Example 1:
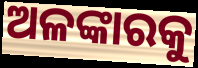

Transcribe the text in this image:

ଅଳଙ୍କାରକୁ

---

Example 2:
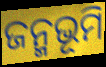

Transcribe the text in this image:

ଜନ୍ମଭୂମି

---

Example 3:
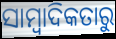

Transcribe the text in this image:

ସାମ୍ବାଦିକତାରୁ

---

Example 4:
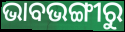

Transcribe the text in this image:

ଭାବଭଙ୍ଗୀରୁ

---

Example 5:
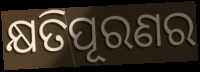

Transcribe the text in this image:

କ୍ଷତିପୂରଣର